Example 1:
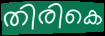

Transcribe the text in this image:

തിരികെ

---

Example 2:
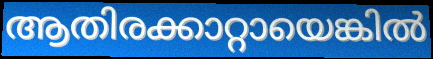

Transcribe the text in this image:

ആതിരക്കാറ്റായെങ്കിൽ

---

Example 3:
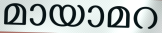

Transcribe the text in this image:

മായാമറ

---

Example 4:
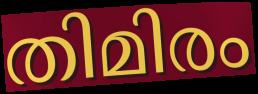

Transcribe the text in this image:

തിമിരം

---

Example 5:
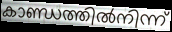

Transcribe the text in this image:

കാണ്ഡത്തിൽനിന്ന്